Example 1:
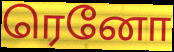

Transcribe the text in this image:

ரெனோ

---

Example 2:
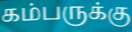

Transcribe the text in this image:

கம்பருக்கு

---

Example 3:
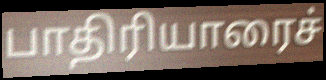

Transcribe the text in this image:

பாதிரியாரைச்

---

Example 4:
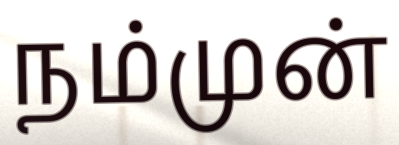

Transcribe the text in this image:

நம்முன்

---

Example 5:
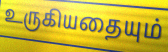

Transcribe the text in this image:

உருகியதையும்